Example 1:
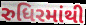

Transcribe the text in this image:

રુધિરમાંથી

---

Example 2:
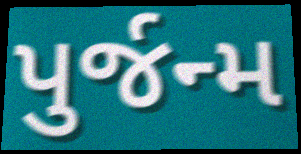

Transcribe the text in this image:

પુર્જન્મ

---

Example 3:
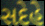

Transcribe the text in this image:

સદેહે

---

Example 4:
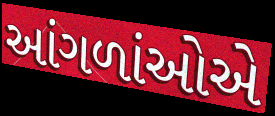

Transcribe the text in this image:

આંગળાંઓએ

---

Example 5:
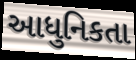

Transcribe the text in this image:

આધુનિકતા